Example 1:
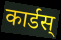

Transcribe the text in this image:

कार्डस्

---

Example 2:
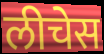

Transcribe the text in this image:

लीचेस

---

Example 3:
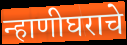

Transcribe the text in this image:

न्हाणीघराचे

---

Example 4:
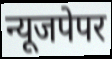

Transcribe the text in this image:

न्यूजपेपर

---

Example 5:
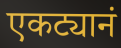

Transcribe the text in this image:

एकट्यानं